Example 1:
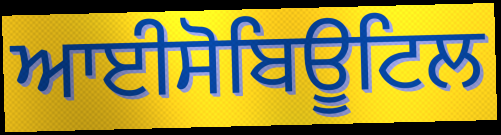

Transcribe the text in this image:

ਆਈਸੋਬਿਊਟਿਲ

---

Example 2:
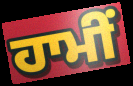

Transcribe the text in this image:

ਹਾਮੀਂ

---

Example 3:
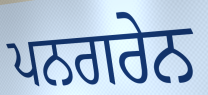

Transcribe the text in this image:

ਪਨਗਰੇਨ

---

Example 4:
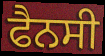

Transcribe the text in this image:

ਫੈਨਸੀ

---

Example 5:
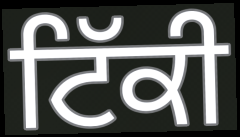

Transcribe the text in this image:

ਟਿੱਕੀ